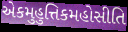
એકમુહુત્તિકમહોસીતિ